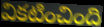
వికటించింది